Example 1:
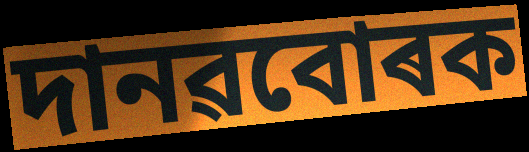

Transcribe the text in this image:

দানৱবোৰক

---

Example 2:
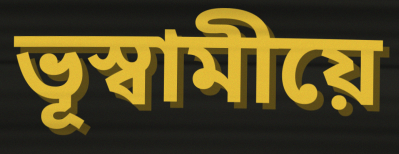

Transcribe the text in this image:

ভূস্বামীয়ে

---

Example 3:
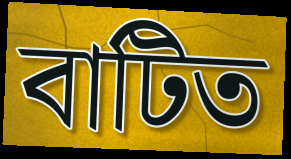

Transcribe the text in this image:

বাটিত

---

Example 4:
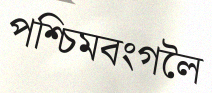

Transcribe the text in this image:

পশ্চিমবংগলৈ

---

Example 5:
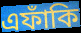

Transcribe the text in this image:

এফাঁকি